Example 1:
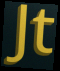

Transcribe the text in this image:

Jt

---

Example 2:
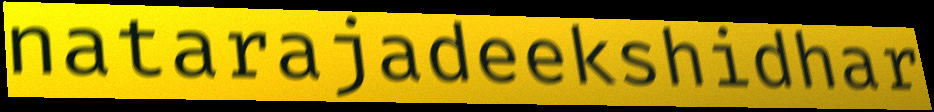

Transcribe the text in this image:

natarajadeekshidhar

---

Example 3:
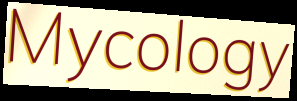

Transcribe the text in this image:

Mycology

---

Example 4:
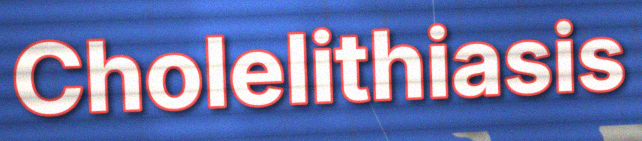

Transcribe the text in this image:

Cholelithiasis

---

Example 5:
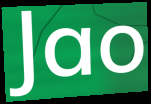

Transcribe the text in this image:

Jao